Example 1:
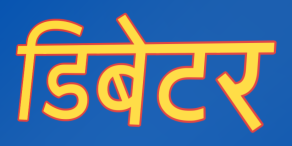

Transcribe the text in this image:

डिबेटर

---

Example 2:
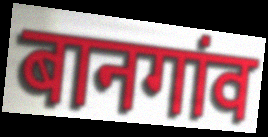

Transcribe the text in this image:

बानगांव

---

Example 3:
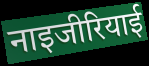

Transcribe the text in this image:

नाइजीरियाई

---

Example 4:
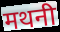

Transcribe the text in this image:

मथनी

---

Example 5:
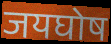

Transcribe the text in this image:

जयघोष